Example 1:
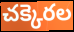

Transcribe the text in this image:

చక్కెరల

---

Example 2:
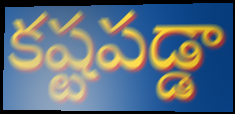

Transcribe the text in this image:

కష్టపడ్డా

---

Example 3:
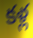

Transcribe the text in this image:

కళ్ల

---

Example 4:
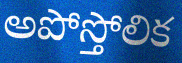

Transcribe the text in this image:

అపోస్తోలిక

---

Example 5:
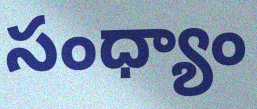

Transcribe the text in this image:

సంధ్యాం